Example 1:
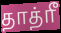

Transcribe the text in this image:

தாத்ரீ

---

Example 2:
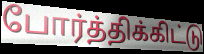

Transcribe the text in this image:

போர்த்திக்கிட்டு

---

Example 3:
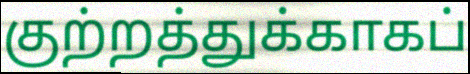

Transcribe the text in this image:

குற்றத்துக்காகப்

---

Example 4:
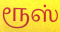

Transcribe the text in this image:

ரூஸ்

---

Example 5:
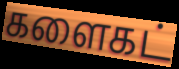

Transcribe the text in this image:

களைகட்